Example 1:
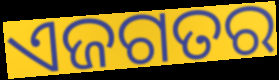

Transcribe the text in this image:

ଏଜଗତର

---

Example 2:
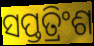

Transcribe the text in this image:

ସପ୍ତତ୍ରିଂଶ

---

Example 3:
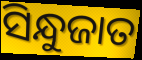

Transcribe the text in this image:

ସିନ୍ଧୁଜାତ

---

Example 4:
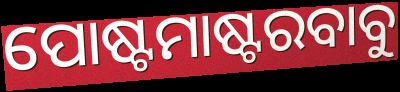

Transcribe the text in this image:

ପୋଷ୍ଟମାଷ୍ଟରବାବୁ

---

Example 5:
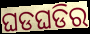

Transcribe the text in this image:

ଘଡଘଡିର